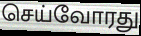
செய்வோரது